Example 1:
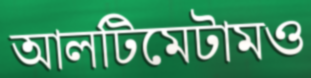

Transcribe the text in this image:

আলটিমেটামও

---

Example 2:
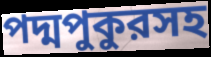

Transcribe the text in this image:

পদ্মপুকুরসহ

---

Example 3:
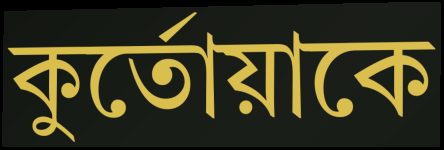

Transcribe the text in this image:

কুর্তোয়াকে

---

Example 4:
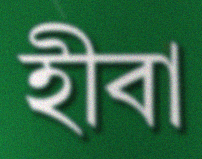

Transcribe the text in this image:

হীবা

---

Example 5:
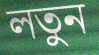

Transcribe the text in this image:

লতুন